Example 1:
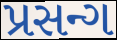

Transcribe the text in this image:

પ્રસન્ગ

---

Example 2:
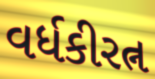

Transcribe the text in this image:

વર્ધકીરત્ન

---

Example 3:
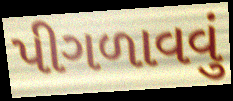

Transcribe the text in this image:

પીગળાવવું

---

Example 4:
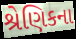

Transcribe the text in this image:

શ્રેણિકના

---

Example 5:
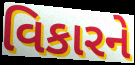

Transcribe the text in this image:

વિકારને